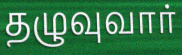
தழுவுவார்